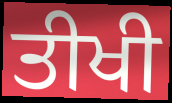
ਤੀਖੀ